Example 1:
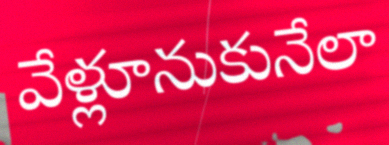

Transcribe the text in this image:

వేళ్లూనుకునేలా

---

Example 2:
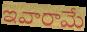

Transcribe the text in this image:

ఇవారామే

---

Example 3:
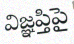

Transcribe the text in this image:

విజ్ఞప్తిపై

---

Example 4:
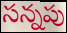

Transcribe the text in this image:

సన్నపు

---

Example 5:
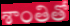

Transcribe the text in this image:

శాంతితో